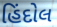
હિંદોલ